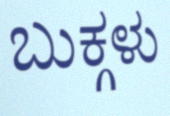
ಬುಕ್ಗಳು